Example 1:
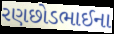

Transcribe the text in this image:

રણછોડભાઈના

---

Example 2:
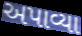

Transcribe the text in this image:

અપાવ્યા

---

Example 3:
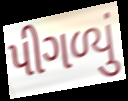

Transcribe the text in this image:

પીગળ્યું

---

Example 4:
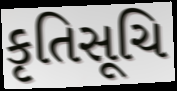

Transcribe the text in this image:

કૃતિસૂચિ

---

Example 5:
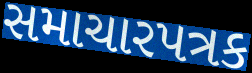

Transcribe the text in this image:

સમાચારપત્રક